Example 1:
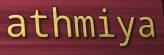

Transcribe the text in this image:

athmiya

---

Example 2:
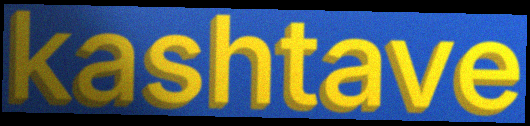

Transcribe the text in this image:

kashtave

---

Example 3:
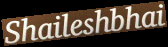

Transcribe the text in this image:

Shaileshbhai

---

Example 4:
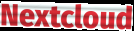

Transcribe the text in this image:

Nextcloud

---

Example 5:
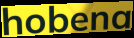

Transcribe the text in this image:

hobena